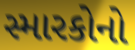
સ્મારકોનો